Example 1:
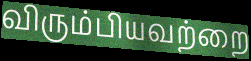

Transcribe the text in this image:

விரும்பியவற்றை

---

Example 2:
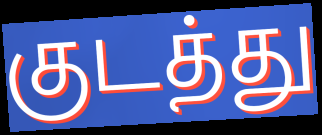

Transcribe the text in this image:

குடத்து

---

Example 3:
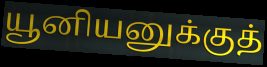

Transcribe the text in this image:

யூனியனுக்குத்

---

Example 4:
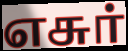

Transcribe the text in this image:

எசுர்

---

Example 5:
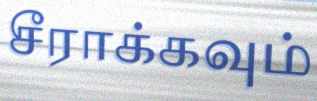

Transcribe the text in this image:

சீராக்கவும்